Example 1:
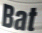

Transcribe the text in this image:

Bat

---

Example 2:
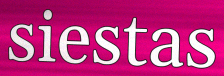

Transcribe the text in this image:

siestas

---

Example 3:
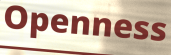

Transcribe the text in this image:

Openness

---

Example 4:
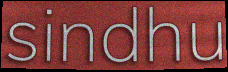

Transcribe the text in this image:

sindhu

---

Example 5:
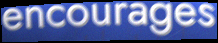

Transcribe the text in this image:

encourages